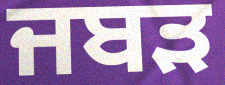
ਜਬੜ